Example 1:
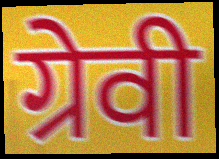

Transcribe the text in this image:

ग्रेवी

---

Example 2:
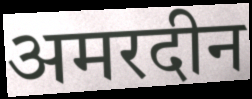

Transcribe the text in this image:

अमरदीन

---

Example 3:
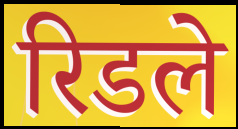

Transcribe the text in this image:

रिडले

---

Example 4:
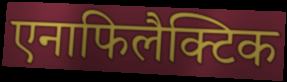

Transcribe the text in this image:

एनाफिलैक्टिक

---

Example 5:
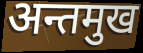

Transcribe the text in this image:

अन्तमुख